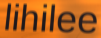
lihilee